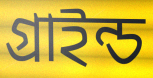
গ্রাইন্ড